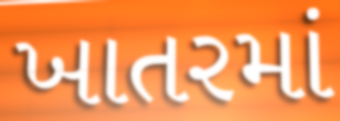
ખાતરમાં